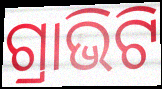
ଗ୍ରାଭିଟି